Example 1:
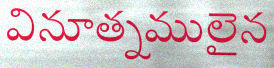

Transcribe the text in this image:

వినూత్నములైన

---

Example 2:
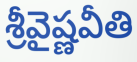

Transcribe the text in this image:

శ్రీవైష్ణవీతి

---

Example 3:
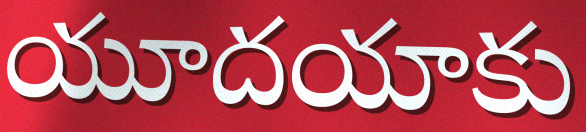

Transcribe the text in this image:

యూదయాకు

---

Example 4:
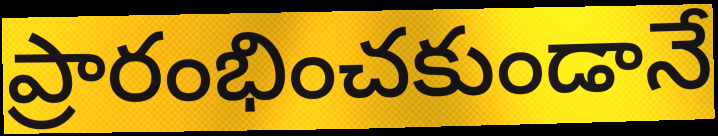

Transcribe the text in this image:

ప్రారంభించకుండానే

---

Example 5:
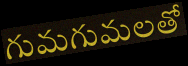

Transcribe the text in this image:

గుమగుమలతో